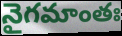
నైగమాంతః